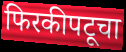
फिरकीपटूचा